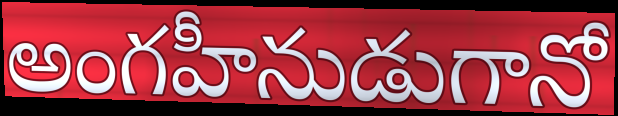
అంగహీనుడుగానో